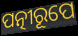
ପତ୍ନୀରୂପେ